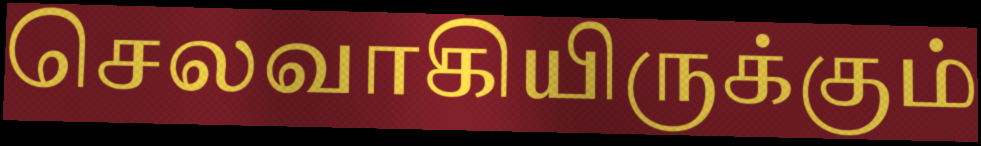
செலவாகியிருக்கும்